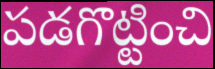
పడగొట్టించి